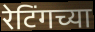
रेटिंगच्या